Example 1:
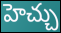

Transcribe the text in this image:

హెచ్చు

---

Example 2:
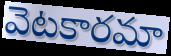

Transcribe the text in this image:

వెటకారమా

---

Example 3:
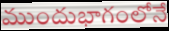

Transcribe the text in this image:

ముందుభాగంలోనే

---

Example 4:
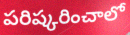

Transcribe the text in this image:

పరిష్కరించాలో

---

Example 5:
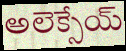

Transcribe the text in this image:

అలెక్సేయ్